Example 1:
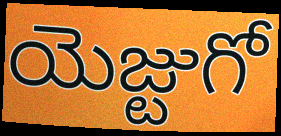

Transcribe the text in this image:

యెజ్టుగో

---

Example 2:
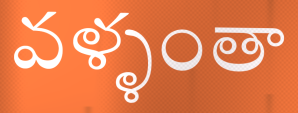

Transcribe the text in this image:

వళ్ళంతా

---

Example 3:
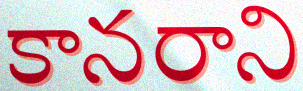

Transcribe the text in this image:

కానరాని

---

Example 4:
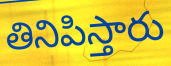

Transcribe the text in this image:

తినిపిస్తారు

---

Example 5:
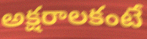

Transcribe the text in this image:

అక్షరాలకంటే